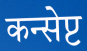
कन्सेप्ट